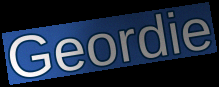
Geordie